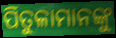
ପିତୁଳାମାନଙ୍କୁ